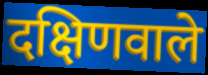
दक्षिणवाले